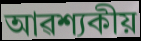
আৱশ্যকীয়